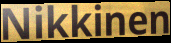
Nikkinen